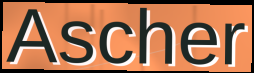
Ascher